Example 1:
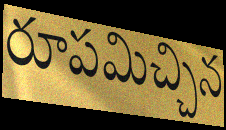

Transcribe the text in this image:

రూపమిచ్చిన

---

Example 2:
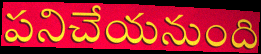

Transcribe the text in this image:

పనిచేయనుంది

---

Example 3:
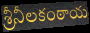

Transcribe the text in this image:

శ్రీనీలకంఠాయ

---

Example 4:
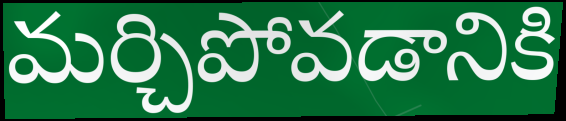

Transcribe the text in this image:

మర్చిపోవడానికి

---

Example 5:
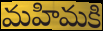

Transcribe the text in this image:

మహిమకి